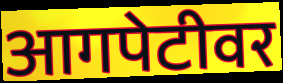
आगपेटीवर